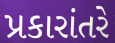
પ્રકારાંતરે